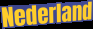
Nederland